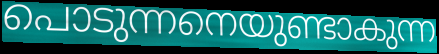
പൊടുന്നനെയുണ്ടാകുന്ന